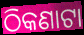
ଠିକଣାଟା